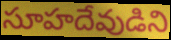
సూహదేవుడిని